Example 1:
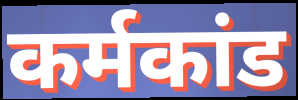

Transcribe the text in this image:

कर्मकांड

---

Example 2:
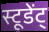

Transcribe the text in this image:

स्टूडेंट्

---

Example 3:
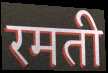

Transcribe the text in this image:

रमती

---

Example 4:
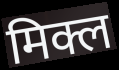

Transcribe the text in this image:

मिक्ल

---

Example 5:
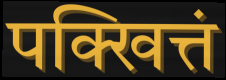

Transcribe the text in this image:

पक्खित्तं